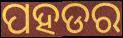
ପହଡର